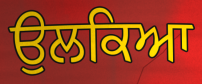
ਉਲਕਿਆ